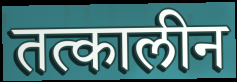
तत्कालीन